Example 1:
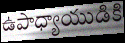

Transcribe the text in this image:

ఉపాధ్యాయుడికి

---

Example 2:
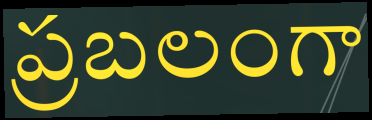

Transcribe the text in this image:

ప్రబలంగా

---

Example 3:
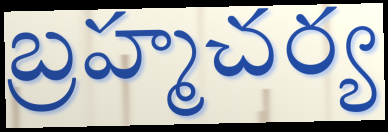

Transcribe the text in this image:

బ్రహ్మచర్య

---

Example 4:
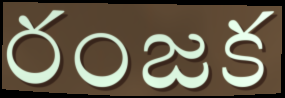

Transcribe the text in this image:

రంజక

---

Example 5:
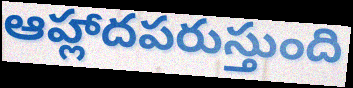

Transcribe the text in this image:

ఆహ్లాదపరుస్తుంది